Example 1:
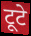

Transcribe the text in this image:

टूटे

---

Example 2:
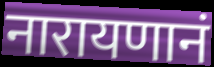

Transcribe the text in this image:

नारायणानं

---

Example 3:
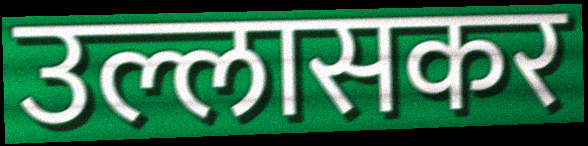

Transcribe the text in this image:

उल्लासकर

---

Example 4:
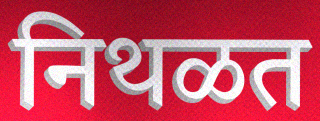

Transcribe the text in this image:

निथळत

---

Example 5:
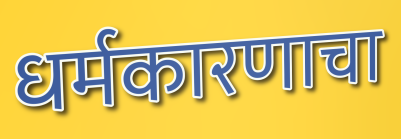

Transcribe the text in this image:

धर्मकारणाचा